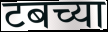
टबच्या